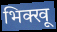
भिक्खू